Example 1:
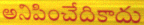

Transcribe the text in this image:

అనిపించేదికాదు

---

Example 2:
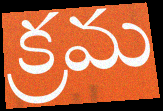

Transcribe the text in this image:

క్రమ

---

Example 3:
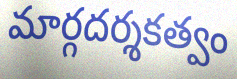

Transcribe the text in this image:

మార్గదర్శకత్వం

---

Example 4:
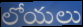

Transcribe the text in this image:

లోయలు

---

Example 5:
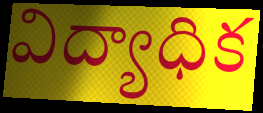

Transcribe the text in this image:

విద్యాధిక